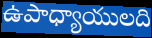
ఉపాధ్యాయులది